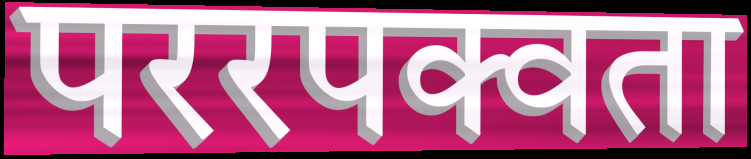
पररपक्वता